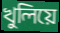
খুলিয়ে